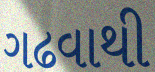
ગઢવાથી